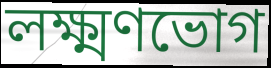
লক্ষ্মণভোগ